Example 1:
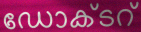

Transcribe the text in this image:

ഡോക്ടറ്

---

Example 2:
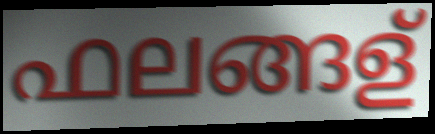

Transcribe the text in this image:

ഫലങ്ങള്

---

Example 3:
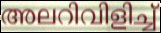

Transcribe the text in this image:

അലറിവിളിച്ച്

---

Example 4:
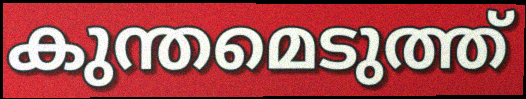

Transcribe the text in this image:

കുന്തമെടുത്ത്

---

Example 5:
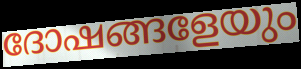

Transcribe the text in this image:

ദോഷങ്ങളേയും